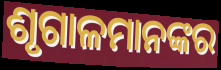
ଶୃଗାଳମାନଙ୍କର